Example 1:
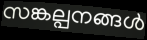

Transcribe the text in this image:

സങ്കല്പനങ്ങൾ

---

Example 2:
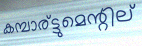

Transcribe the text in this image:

കമ്പാര്ട്ടുമെന്റില്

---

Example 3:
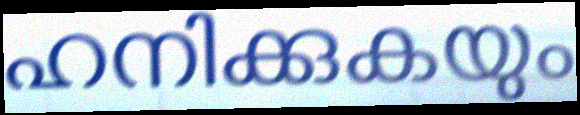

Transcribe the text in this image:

ഹനിക്കുകയും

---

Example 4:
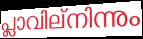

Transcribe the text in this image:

പ്ലാവില്നിന്നും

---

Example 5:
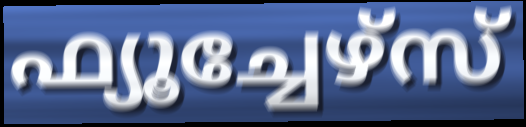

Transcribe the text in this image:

ഫ്യൂച്ചേഴ്സ്